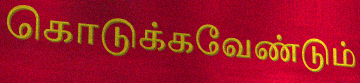
கொடுக்கவேண்டும்